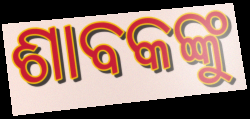
ଶାବକଙ୍କୁ